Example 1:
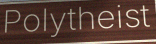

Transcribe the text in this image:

Polytheist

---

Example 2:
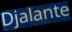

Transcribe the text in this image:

Djalante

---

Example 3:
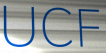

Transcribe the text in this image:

UCF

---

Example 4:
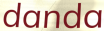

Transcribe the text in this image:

danda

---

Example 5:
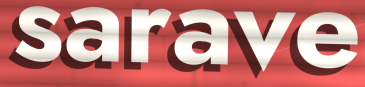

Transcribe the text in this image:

sarave